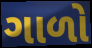
ગાળો